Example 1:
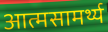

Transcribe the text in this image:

आत्मसामर्थ्य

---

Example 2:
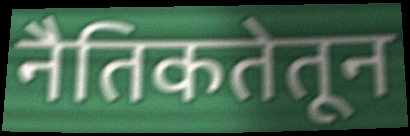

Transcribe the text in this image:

नैतिकतेतून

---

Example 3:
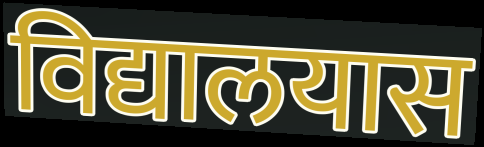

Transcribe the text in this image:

विद्यालयास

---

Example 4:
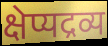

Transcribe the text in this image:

क्षेप्यद्रव्य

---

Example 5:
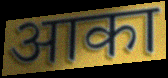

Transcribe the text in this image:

आका